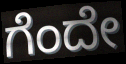
ಗೆಂದೇ